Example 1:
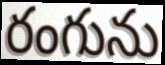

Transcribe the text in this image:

రంగును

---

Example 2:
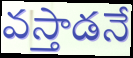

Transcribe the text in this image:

వస్తాడనే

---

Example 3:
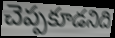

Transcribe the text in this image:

చెప్పకూడనిది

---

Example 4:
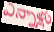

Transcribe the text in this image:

ఎన్నాళ్లు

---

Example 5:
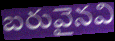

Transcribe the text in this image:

బరువైనవి